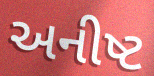
અનીષ્ટ